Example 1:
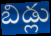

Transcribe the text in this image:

బిడ్లు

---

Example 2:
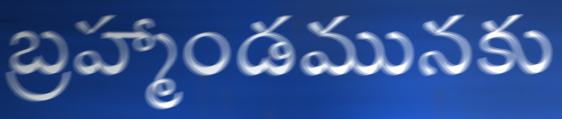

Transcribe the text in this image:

బ్రహ్మాండమునకు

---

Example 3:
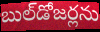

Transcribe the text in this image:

బుల్‌డోజర్లను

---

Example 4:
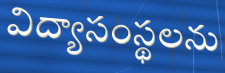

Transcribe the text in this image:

విద్యాసంస్థలను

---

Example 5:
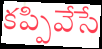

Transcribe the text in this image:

కప్పివేసే